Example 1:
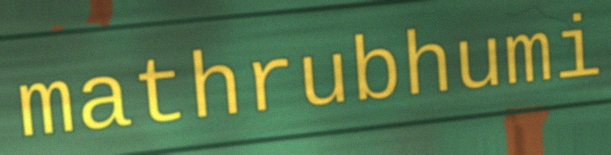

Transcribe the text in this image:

mathrubhumi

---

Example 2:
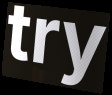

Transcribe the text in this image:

try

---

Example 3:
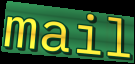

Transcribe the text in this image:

mail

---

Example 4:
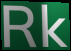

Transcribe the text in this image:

Rk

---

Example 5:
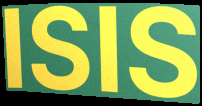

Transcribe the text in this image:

ISIS